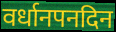
वर्धानपनदिन